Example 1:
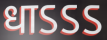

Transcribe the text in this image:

धाऽऽऽ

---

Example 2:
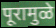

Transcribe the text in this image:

पूरामुळे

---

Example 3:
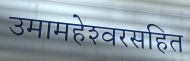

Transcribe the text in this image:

उमामहेश्वरसहित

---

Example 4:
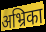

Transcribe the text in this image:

अभ्रिका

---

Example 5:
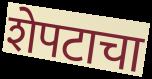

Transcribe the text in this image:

शेपटाचा